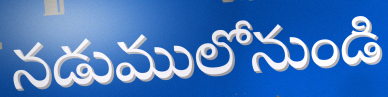
నడుములోనుండి